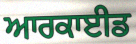
ਆਰਕਾਈਡ